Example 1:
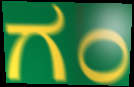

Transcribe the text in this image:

ಗಂ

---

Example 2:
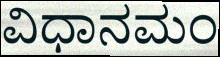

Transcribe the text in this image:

ವಿಧಾನಮಂ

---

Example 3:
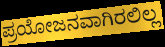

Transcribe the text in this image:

ಪ್ರಯೋಜನವಾಗಿರಲಿಲ್ಲ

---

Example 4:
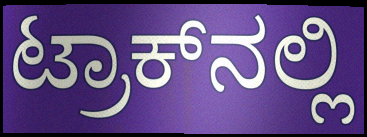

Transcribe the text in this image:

ಟ್ರಾಕ್‌ನಲ್ಲಿ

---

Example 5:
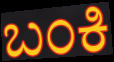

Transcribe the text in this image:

ಬಂಕಿ